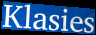
Klasies